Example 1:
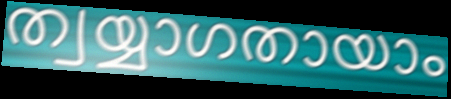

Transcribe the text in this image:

ത്വയ്യാഗതായാം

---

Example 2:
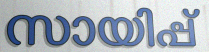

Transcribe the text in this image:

സായിപ്പ്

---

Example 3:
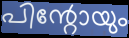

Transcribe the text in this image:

പിന്റോയും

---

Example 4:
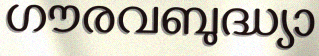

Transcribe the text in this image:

ഗൗരവബുദ്ധ്യാ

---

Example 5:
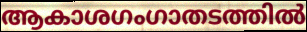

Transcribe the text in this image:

ആകാശഗംഗാതടത്തിൽ